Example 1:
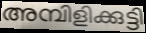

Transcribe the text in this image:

അമ്പിളിക്കുട്ടി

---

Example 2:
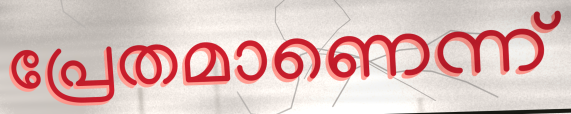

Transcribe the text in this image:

പ്രേതമാണെന്ന്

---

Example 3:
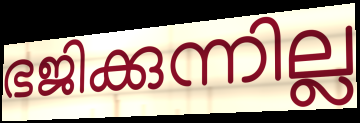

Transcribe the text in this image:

ഭജിക്കുന്നില്ല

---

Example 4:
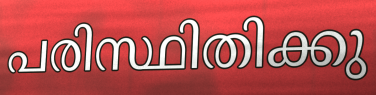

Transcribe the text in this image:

പരിസ്ഥിതിക്കു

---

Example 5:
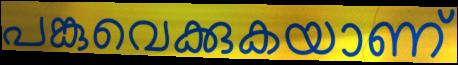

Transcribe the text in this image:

പങ്കുവെക്കുകയാണ്